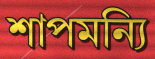
শাপমন্যি